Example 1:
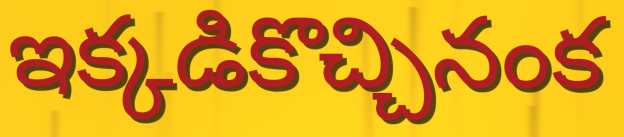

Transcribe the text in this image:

ఇక్కడికొచ్చినంక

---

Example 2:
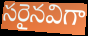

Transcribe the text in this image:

సరైనవిగా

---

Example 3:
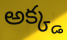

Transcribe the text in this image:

అక్క్డ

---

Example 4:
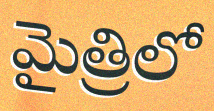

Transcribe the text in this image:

మైత్రిలో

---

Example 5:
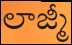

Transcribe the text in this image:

లాజ్మీ